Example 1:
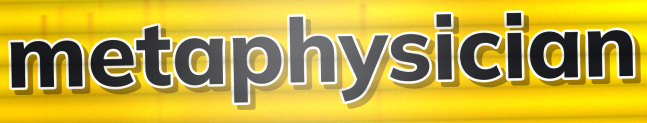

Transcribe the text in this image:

metaphysician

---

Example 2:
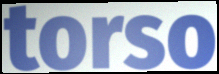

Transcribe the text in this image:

torso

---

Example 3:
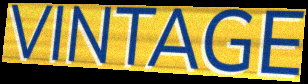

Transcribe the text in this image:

VINTAGE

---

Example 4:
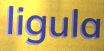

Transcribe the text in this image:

ligula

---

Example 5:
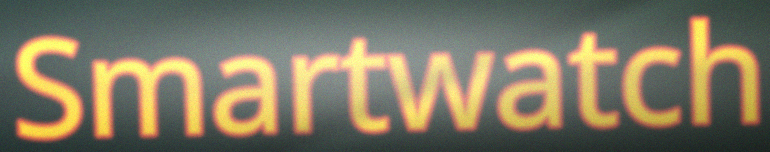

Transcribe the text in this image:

Smartwatch